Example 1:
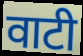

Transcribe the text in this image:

वाटी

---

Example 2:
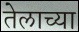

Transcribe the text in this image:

तेलाच्या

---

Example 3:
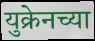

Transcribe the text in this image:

युक्रेनच्या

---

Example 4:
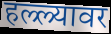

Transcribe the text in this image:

हल्ल्यावर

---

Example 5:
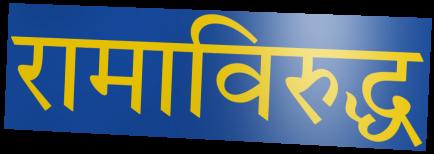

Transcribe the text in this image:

रामाविरुद्ध